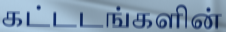
கட்டடங்களின்